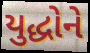
યુદ્ધોને